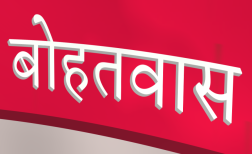
बोहतवास